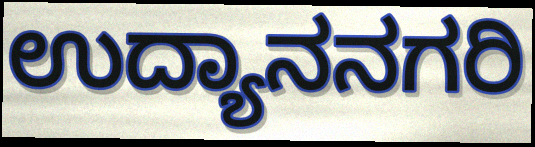
ಉದ್ಯಾನನಗರಿ